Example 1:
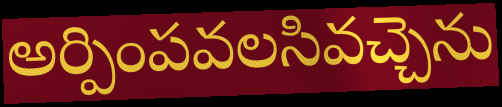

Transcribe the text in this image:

అర్పింపవలసివచ్చెను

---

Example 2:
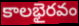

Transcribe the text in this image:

కాలభైరవం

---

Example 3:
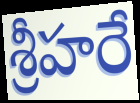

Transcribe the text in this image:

శ్రీహరే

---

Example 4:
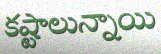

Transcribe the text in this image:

కష్టాలున్నాయి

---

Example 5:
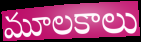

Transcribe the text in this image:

మూలకాలు